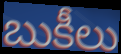
బుకీలు